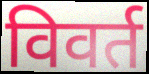
विवर्त